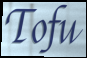
Tofu